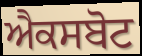
ਐਕਸਬੋਟ